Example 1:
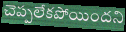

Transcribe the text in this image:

చెప్పలేకపోయిందని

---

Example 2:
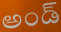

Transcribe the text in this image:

అండ్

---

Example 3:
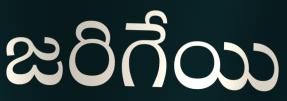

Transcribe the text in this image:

జరిగేయి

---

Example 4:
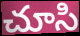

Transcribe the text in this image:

చూసి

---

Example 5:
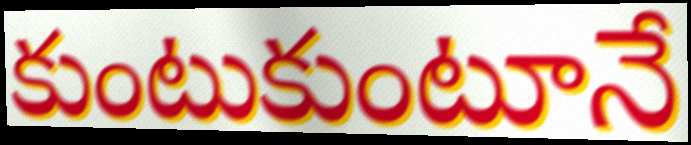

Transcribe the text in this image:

కుంటుకుంటూనే